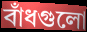
বাঁধগুলো